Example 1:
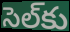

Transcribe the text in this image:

సెల్‌కు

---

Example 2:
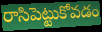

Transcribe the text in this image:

రాసిపెట్టుకోవడం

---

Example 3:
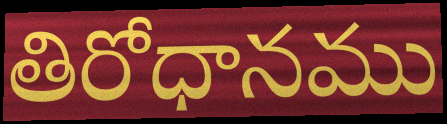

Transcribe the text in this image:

తిరోధానము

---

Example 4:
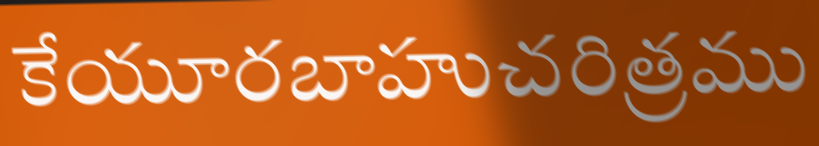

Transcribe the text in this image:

కేయూరబాహుచరిత్రము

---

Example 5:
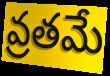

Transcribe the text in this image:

వ్రతమే